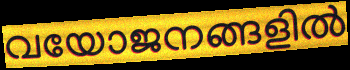
വയോജനങ്ങളിൽ